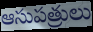
ఆసుపత్రులు